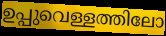
ഉപ്പുവെള്ളത്തിലോ